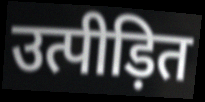
उत्पीड़ित